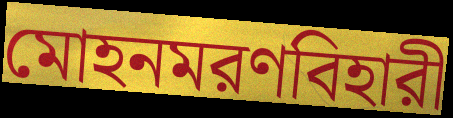
মোহনমরণবিহারী